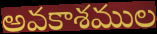
అవకాశముల